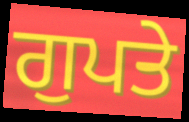
ਗੁਪਤੇ